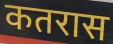
कतरास